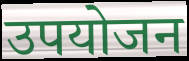
उपयोजन